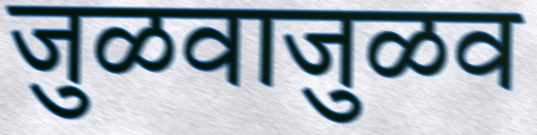
जुळवाजुळव